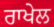
ਰਾਖੇਲ